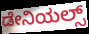
ಡೇನಿಯಲ್ಸ್